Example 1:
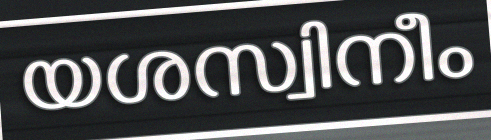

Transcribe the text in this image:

യശസ്വിനീം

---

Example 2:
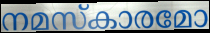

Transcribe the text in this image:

നമസ്കാരമോ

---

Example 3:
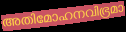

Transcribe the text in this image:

അതിമോഹനവിഭ്രമാ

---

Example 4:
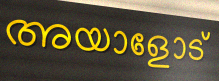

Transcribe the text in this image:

അയാളോട്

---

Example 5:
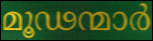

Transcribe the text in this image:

മൂഢന്മാർ